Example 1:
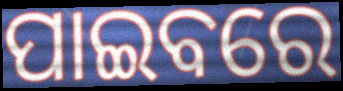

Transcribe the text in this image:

ପାଇବରେ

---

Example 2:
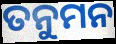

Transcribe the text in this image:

ତନୁମନ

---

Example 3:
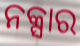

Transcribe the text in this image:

ନକ୍ସାର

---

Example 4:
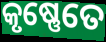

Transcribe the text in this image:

କୃଷ୍ଣେତେ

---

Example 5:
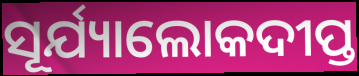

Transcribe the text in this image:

ସୂର୍ଯ୍ୟାଲୋକଦୀପ୍ତ